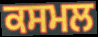
ਕਸਮਲ